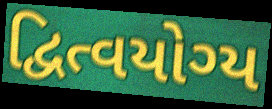
દ્વિત્વયોગ્ય